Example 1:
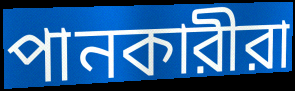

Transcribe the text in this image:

পানকারীরা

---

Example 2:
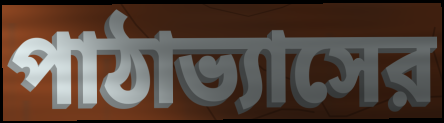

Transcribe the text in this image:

পাঠাভ্যাসের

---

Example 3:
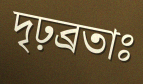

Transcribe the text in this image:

দৃঢ়ব্রতাঃ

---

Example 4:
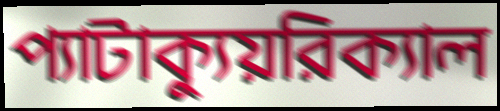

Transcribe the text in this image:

প্যাটাক্যুয়রিক্যাল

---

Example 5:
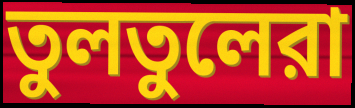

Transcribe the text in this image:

তুলতুলেরা